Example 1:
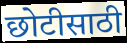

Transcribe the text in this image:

छोटीसाठी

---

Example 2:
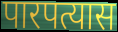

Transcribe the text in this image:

पारपत्यास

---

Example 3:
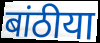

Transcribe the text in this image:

बांठीया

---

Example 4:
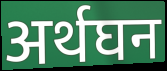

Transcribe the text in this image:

अर्थघन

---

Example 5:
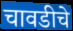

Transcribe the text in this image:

चावडीचे